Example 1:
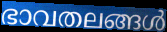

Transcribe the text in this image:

ഭാവതലങ്ങൾ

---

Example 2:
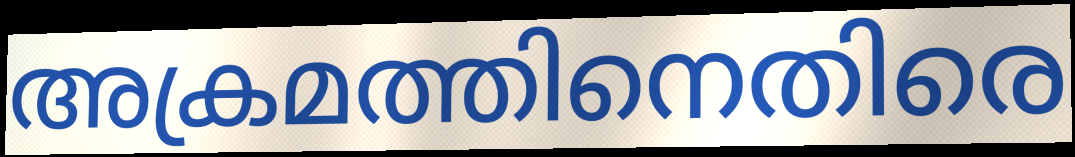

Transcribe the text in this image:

അക്രമത്തിനെതിരെ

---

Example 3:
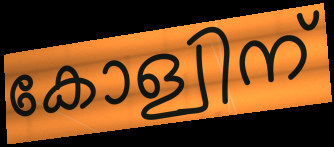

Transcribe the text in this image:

കോള്വിന്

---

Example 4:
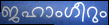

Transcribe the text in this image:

ജഹാംഗീറും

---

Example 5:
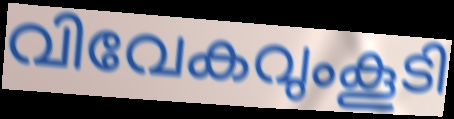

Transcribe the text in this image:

വിവേകവുംകൂടി